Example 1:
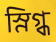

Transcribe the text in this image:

স্নিগ্ধ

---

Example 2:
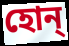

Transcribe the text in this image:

হোন্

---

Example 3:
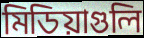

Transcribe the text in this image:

মিডিয়াগুলি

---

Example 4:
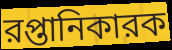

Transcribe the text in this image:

রপ্তানিকারক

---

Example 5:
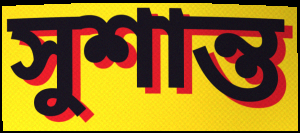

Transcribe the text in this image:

সুশান্ত